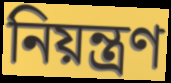
নিয়ন্ত্রণ